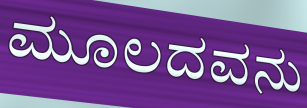
ಮೂಲದವನು